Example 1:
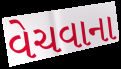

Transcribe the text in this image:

વેચવાના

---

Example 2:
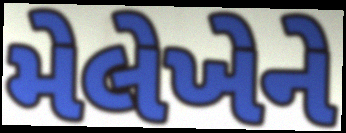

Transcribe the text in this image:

મેલેખેને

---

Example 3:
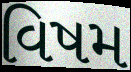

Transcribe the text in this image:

વિષમ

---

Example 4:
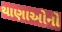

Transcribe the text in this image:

થાણાઓનો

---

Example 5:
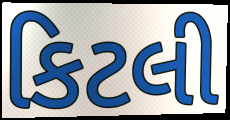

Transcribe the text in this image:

કિટલી